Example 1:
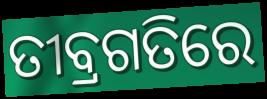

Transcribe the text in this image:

ତୀବ୍ରଗତିରେ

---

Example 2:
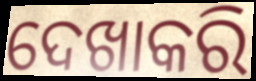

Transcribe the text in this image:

ଦେଖାକରି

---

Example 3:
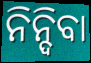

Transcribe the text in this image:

ନିନ୍ଦିବା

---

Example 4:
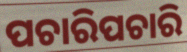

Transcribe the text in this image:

ପଚାରିପଚାରି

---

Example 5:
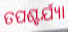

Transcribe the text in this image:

ତପଶ୍ଚର୍ଯ୍ୟା